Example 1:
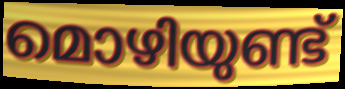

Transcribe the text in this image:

മൊഴിയുണ്ട്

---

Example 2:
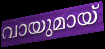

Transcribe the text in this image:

വായുമായ്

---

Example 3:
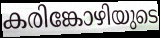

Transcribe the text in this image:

കരിങ്കോഴിയുടെ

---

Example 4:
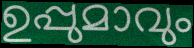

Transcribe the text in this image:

ഉപ്പുമാവും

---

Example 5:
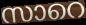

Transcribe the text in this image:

സാറെ